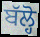
ਬੱਲ੍ਹੋ